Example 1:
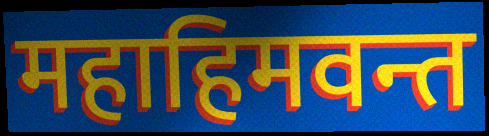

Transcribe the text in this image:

महाहिमवन्त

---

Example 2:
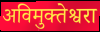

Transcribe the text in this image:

अविमुक्तेश्वरा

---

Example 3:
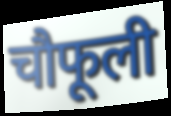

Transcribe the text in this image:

चौफूली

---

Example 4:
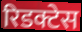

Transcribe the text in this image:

रिडक्टेस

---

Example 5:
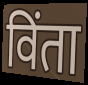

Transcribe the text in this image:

विंता